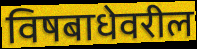
विषबाधेवरील